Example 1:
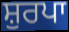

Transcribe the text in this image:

ਸ਼ੁਰਪਾ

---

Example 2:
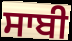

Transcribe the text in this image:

ਸਾਬੀ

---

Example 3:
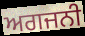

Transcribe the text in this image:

ਅਗਜਨੀ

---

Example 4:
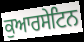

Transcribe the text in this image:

ਕੁਆਰਸੇਟਿਨ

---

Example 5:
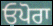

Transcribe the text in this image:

ਓਪੋਰਾ